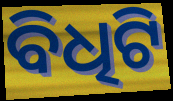
ବିଧିଟି